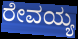
ರೇವಯ್ಯ